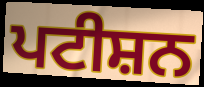
ਪਟੀਸ਼ਨ